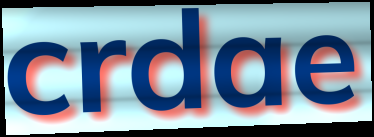
crdae